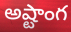
అష్టాంగ